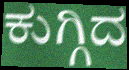
ಕುಗ್ಗಿದ